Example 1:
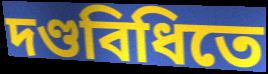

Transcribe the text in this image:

দণ্ডবিধিতে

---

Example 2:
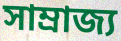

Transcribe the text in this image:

সাম্রাজ্য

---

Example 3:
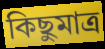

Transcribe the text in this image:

কিছুমাত্র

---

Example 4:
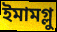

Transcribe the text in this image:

ইমামগ্লু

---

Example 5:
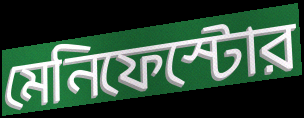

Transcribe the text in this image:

মেনিফেস্টোর